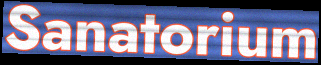
Sanatorium